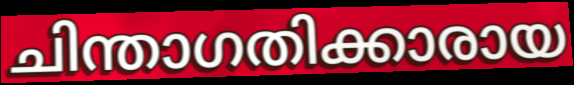
ചിന്താഗതിക്കാരായ